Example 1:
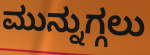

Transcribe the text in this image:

ಮುನ್ನುಗ್ಗಲು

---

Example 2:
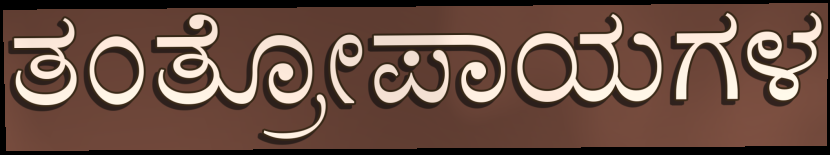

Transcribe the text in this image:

ತಂತ್ರೋಪಾಯಗಳ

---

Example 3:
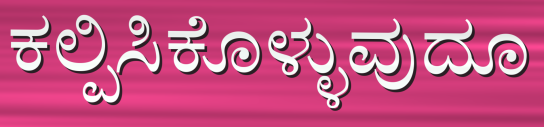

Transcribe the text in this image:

ಕಲ್ಪಿಸಿಕೊಳ್ಳುವುದೂ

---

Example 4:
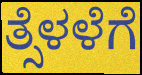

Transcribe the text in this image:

ತ್ಸೆಳಳೆಗೆ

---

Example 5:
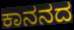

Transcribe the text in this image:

ಕಾನನದ